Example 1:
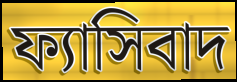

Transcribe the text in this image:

ফ্যাসিবাদ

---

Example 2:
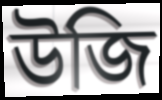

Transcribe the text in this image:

উজি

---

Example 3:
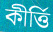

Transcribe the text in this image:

কীৰ্ত্তি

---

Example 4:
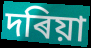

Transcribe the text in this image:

দৰিয়া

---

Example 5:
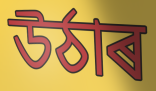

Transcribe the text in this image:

উঠাৰ